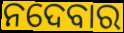
ନଦେବାର